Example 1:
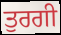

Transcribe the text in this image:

ਤੁਰਗੀ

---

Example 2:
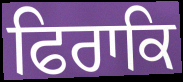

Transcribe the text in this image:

ਫਿਰਾਕਿ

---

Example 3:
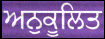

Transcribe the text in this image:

ਅਨੁਕੂਲਿਤ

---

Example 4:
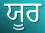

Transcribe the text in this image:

ਯੂਰ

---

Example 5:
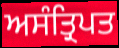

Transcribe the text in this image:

ਅਸੰਤ੍ਰਿਪਤ